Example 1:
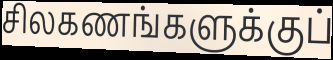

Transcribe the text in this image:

சிலகணங்களுக்குப்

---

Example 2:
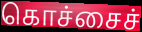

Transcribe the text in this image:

கொச்சைச்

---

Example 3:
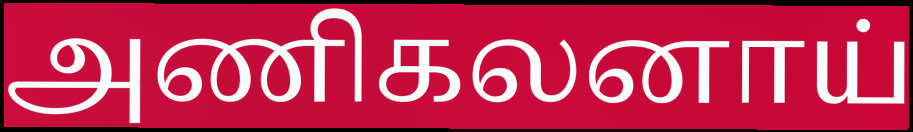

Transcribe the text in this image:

அணிகலனாய்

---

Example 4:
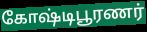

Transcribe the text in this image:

கோஷ்டிபூரணர்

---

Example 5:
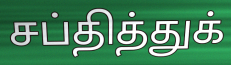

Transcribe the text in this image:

சப்தித்துக்